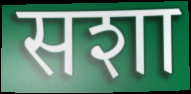
सशा